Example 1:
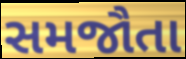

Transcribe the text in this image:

સમજૌતા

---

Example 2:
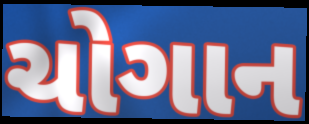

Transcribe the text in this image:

ચોગાન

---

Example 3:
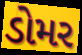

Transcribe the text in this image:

ડોમર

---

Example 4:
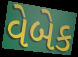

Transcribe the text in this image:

વેબેક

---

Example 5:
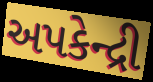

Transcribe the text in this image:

અપકેન્દ્રી